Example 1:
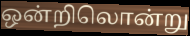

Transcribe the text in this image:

ஒன்றிலொன்று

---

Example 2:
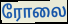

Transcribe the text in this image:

ரோலை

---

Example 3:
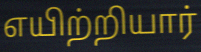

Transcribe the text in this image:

எயிற்றியார்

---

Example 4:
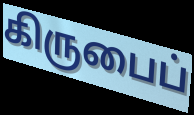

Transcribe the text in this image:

கிருபைப்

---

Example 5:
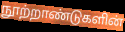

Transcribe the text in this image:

நூற்றாண்டுகளின்